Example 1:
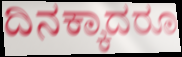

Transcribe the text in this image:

ದಿನಕ್ಕಾದರೂ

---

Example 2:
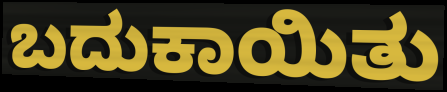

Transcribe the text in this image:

ಬದುಕಾಯಿತು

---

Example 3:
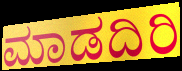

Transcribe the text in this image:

ಮಾಡದಿರಿ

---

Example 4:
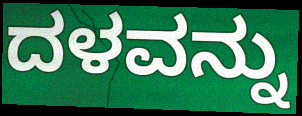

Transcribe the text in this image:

ದಳವನ್ನು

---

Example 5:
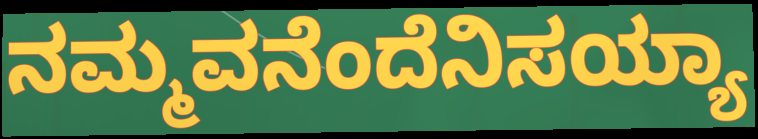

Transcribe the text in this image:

ನಮ್ಮವನೆಂದೆನಿಸಯ್ಯಾ